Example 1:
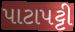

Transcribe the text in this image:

પાટાપટ્ટી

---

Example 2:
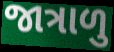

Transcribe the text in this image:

જાત્રાળુ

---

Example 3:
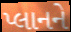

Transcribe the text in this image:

પ્લાનને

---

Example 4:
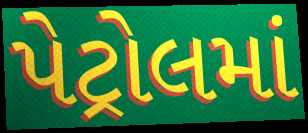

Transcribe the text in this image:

પેટ્રોલમાં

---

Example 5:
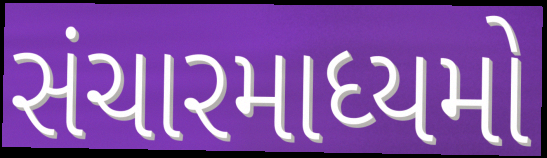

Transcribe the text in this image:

સંચારમાધ્યમો